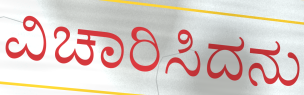
ವಿಚಾರಿಸಿದನು